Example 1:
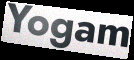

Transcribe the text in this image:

Yogam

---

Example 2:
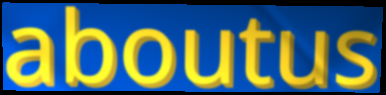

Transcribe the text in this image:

aboutus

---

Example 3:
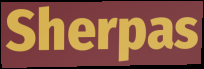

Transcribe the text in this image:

Sherpas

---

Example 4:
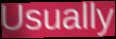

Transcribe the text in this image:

Usually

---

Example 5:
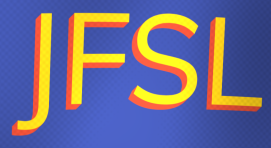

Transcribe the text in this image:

JFSL